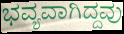
ಭವ್ಯವಾಗಿದ್ದವು